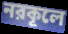
নরকূলে